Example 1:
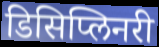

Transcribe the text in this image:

डिसिप्लिनरी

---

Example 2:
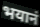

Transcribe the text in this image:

भयानं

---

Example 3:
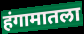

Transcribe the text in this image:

हंगामातला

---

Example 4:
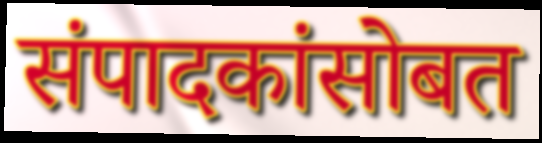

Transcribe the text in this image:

संपादकांसोबत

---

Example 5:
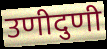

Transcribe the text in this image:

उणीदुणी